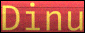
Dinu